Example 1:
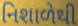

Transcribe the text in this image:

નિશાળેથી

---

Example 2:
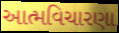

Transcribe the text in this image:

આત્મવિચારણા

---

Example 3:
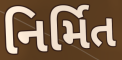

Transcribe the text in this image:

નિર્મિત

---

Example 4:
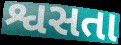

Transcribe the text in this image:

શ્વસતા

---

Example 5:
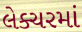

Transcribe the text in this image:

લેક્ચરમાં